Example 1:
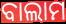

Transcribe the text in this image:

ବାଲାମ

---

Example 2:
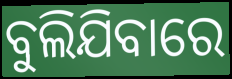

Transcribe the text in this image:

ବୁଲିଯିବାରେ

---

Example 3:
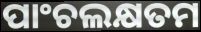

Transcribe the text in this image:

ପାଂଚଲକ୍ଷତମ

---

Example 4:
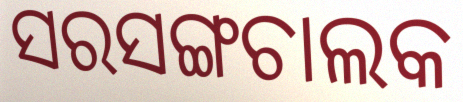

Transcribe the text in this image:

ସରସଙ୍ଗଚାଲକ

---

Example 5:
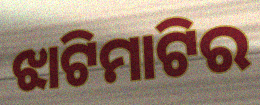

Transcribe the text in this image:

ଝାଟିମାଟିର